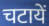
चटायें